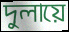
দুলায়ে